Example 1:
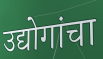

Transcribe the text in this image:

उद्योगांचा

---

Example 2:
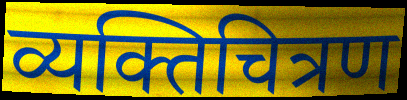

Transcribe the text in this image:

व्यक्तिचित्रण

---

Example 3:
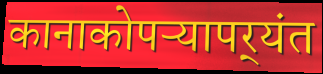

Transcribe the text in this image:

कानाकोपऱ्यापर्यंत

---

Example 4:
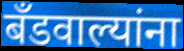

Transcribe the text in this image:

बँडवाल्यांना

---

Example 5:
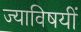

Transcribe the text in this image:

ज्याविषयीं